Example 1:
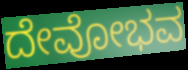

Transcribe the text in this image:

ದೇವೋಭವ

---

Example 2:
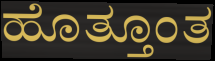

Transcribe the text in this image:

ಹೊತ್ತೂಂತ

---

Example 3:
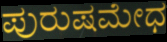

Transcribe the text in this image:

ಪುರುಷಮೇಧ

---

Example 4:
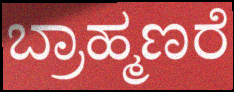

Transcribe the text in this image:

ಬ್ರಾಹ್ಮಣರೆ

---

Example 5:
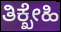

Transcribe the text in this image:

ತಿಕ್ಖೇಹಿ